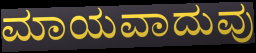
ಮಾಯವಾದುವು